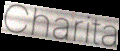
Charita